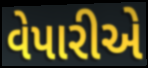
વેપારીએ